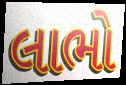
લાભો